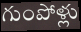
గుంపోళ్లు